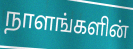
நாளங்களின்